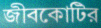
জীবকোটির